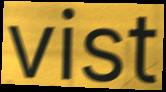
vist